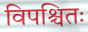
विपश्चितः